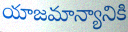
యాజమాన్యానికి